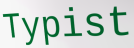
Typist